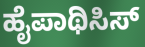
ಹೈಪಾಥಿಸಿಸ್